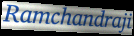
Ramchandraji